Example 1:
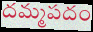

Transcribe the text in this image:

దమ్మపదం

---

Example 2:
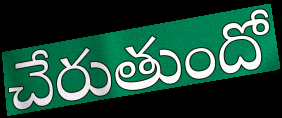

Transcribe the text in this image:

చేరుతుందో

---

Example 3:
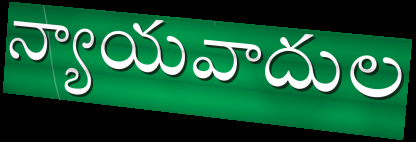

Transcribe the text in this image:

న్యాయవాదుల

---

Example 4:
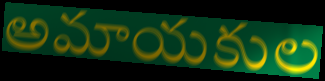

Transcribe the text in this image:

అమాయకుల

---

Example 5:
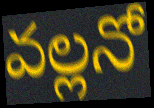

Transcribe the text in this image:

వల్లనో